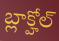
బ్లాక్హోల్